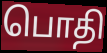
பொதி